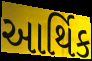
આર્થિક